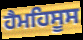
ਹੈਮਹਿਸੂਸ